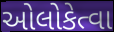
ઓલોકેત્વા